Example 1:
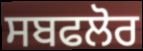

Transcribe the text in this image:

ਸਬਫਲੋਰ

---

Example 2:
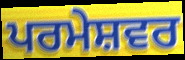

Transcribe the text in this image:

ਪਰਮੇਸ਼ਵਰ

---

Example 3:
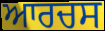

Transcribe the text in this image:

ਆਰਚਸ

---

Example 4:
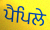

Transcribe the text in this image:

ਪੈਪਿਲੇ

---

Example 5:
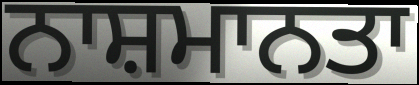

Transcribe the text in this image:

ਨਾਸ਼ਮਾਨਤਾ